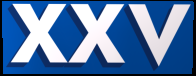
XXV